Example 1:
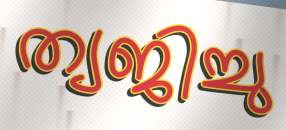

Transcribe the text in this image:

ത്യജിച്ചു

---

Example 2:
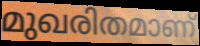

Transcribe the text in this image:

മുഖരിതമാണ്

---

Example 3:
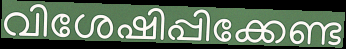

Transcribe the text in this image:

വിശേഷിപ്പിക്കേണ്ട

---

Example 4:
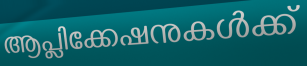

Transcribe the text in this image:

ആപ്ലിക്കേഷനുകൾക്ക്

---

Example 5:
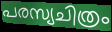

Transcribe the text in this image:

പരസ്യചിത്രം